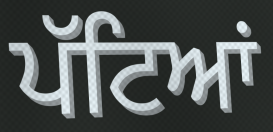
ਪੱਟਿਆਂ